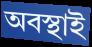
অবস্থাই